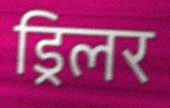
ड्रिलर